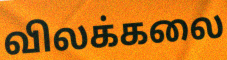
விலக்கலை